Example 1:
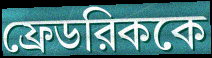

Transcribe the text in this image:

ফ্রেডরিককে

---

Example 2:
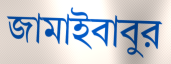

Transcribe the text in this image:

জামাইবাবুর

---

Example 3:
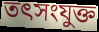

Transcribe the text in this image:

তৎসংযুক্ত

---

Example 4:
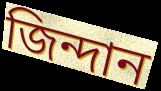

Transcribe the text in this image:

জিন্দান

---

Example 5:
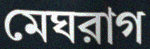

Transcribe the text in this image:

মেঘরাগ